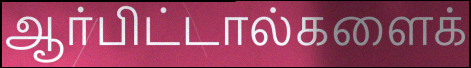
ஆர்பிட்டால்களைக்